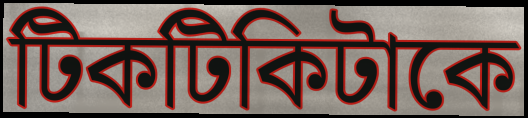
টিকটিকিটাকে